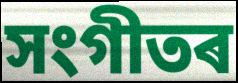
সংগীতৰ